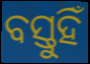
ବସ୍ତୁହିଁ